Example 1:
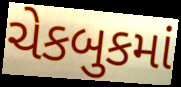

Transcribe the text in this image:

ચેકબુકમાં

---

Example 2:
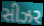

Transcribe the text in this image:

સીઝર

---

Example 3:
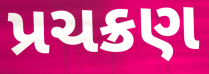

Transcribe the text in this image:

પ્રચક્રણ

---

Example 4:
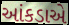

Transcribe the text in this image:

આંકડાએ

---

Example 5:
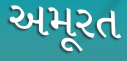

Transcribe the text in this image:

અમૂરત